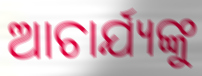
ଆଚାର୍ଯ୍ୟଙ୍କୁ